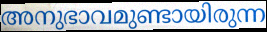
അനുഭാവമുണ്ടായിരുന്ന